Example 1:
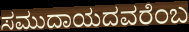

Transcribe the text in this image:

ಸಮುದಾಯದವರೆಂಬ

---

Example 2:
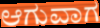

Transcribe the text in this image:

ಆಗುವಾಗ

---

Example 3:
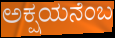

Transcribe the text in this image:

ಅಕ್ಷಯನೆಂಬ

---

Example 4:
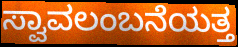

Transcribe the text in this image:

ಸ್ವಾವಲಂಬನೆಯತ್ತ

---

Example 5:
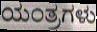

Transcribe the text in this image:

ಯಂತ್ರಗಳು